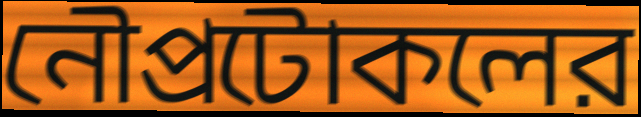
নৌপ্রটোকলের